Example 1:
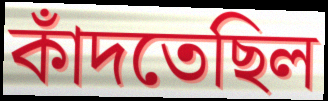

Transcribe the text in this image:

কাঁদতেছিল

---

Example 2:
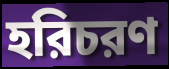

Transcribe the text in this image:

হরিচরণ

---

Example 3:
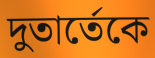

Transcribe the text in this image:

দুতার্তেকে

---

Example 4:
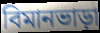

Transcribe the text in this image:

বিমানভাড়া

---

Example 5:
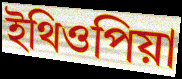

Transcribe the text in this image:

ইথিওপিয়া